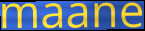
maane